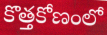
కొత్తకోణంలో